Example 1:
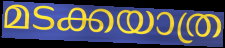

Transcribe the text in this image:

മടക്കയാത്ര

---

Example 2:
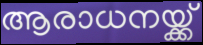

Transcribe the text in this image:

ആരാധനയ്ക്ക്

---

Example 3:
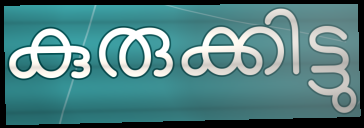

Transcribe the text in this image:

കുരുക്കിട്ടു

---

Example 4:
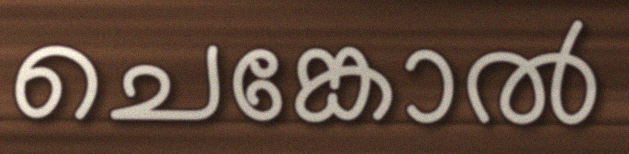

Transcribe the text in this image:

ചെങ്കോൽ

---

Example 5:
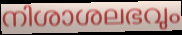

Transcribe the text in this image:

നിശാശലഭവും